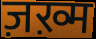
ज़ख़्म